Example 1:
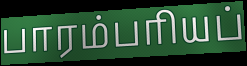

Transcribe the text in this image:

பாரம்பரியப்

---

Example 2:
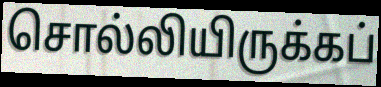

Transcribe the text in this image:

சொல்லியிருக்கப்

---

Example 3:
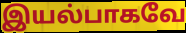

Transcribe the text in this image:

இயல்பாகவே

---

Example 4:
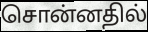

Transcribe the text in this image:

சொன்னதில்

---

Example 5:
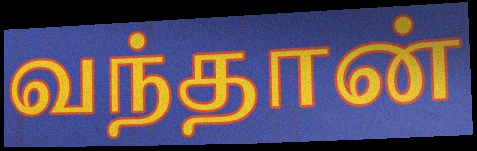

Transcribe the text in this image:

வந்தான்